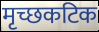
मृच्छकटिक